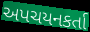
અપચયનકર્તા